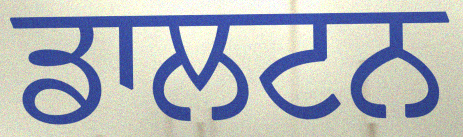
ਡਾਲਟਨ